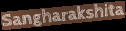
Sangharakshita